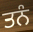
ਤਨੰ